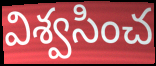
విశ్వసించ